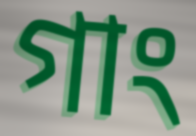
গাং